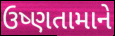
ઉષ્ણતામાને